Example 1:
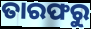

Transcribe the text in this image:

ତାରଫରୁ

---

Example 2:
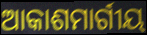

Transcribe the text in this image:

ଆକାଶମାର୍ଗୀୟ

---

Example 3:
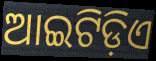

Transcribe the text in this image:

ଆଇଟିଡ଼ିଏ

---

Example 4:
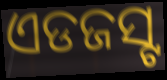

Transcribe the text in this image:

ଏଡଜସ୍ଟ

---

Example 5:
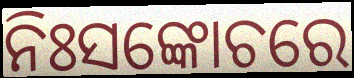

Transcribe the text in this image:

ନିଃସଙ୍କୋଚରେ